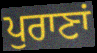
ਪੁਰਾਣਾਂ